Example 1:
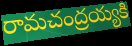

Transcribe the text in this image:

రామచంద్రయ్యకి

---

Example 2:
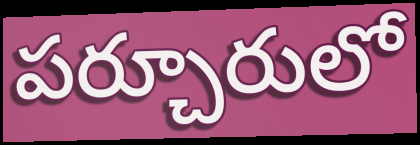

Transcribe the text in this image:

పర్చూరులో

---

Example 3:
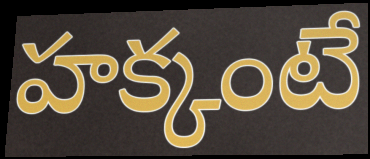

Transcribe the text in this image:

హక్కంటే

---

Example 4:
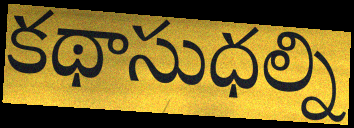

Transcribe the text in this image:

కథాసుధల్ని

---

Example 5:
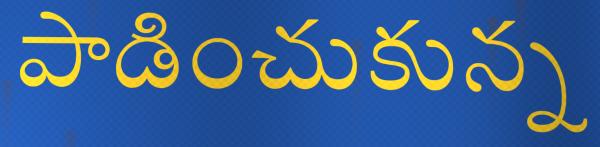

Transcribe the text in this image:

పాడించుకున్న